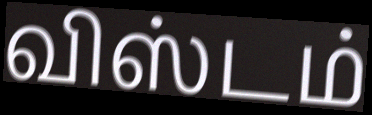
விஸ்டம்